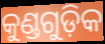
କୁଣ୍ଡଗୁଡ଼ିକ